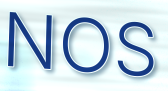
NOS